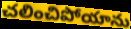
చలించిపోయాను